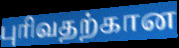
புரிவதற்கான